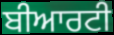
ਬੀਆਰਟੀ